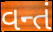
વન્તં